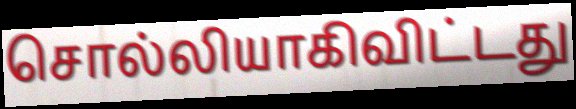
சொல்லியாகிவிட்டது